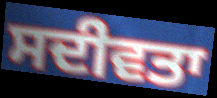
ਸਦੀਵਤਾ